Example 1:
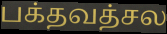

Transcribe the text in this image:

பக்தவத்சல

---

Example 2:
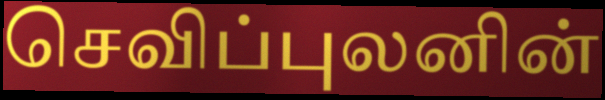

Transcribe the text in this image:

செவிப்புலனின்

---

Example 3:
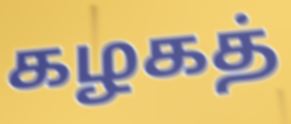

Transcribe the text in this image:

கழகத்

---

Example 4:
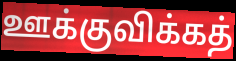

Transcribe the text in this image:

ஊக்குவிக்கத்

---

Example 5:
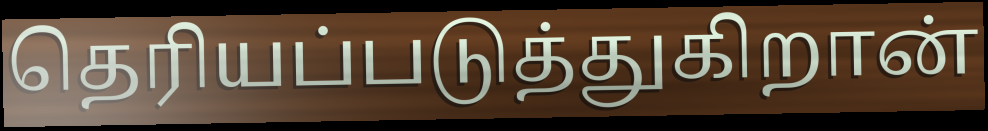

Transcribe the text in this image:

தெரியப்படுத்துகிறான்